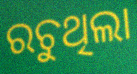
ରଚୁଥିଲା